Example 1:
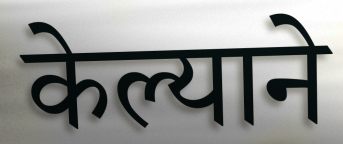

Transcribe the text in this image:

केल्‍याने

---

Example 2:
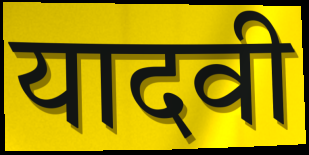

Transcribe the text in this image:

यादवी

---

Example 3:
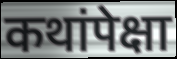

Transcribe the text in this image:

कथांपेक्षा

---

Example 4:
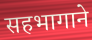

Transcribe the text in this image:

सहभागाने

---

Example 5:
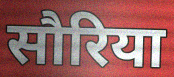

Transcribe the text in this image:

सौरिया